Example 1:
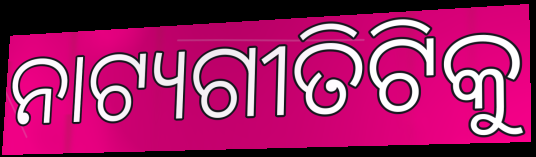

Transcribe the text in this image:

ନାଟ୍ୟଗୀତିଟିକୁ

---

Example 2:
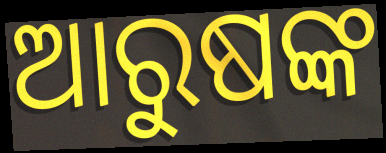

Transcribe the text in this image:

ଆରୁଷଙ୍କ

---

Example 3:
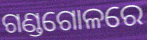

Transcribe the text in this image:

ଗଣ୍ଡଗୋଳରେ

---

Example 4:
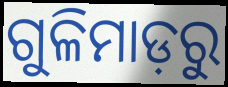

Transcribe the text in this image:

ଗୁଳିମାଡ଼ରୁ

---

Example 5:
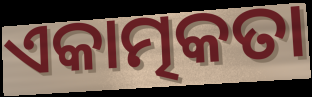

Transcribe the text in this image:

ଏକାତ୍ମକତା